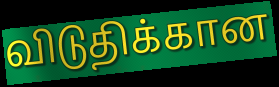
விடுதிக்கான